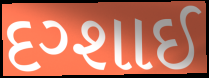
દગ્શાઈ